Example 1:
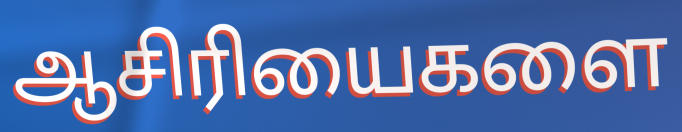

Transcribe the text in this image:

ஆசிரியைகளை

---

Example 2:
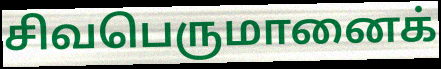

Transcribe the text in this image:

சிவபெருமானைக்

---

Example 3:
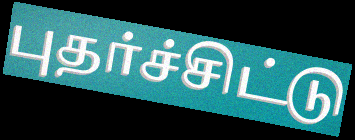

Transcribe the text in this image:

புதர்ச்சிட்டு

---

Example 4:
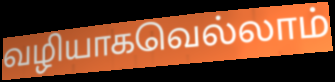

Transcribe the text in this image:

வழியாகவெல்லாம்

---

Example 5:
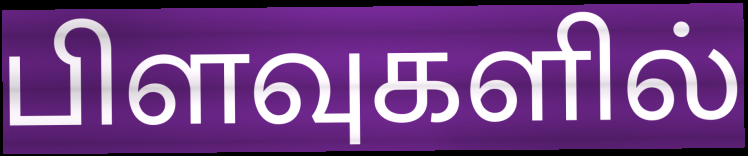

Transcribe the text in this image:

பிளவுகளில்